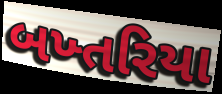
બખ્તરિયા